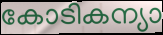
കോടികന്യാ